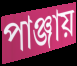
পাঞ্জায়